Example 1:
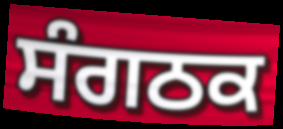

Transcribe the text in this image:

ਸੰਗਠਕ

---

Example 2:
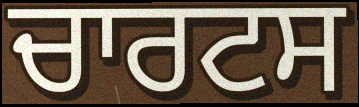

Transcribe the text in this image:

ਚਾਰਟਸ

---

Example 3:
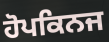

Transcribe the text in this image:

ਹੋਪਕਿਨਜ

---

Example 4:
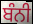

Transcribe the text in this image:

ਬੰਨੀ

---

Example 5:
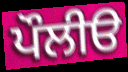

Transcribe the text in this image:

ਪੌਲੀੳ